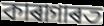
কাৰাগাৰত